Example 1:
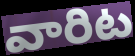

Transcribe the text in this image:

వారిట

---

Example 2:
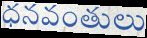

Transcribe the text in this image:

ధనవంతులు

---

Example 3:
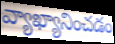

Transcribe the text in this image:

వ్యాఖ్యానించడం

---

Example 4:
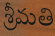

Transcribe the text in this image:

శ్రీమతి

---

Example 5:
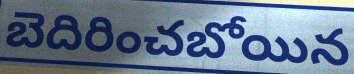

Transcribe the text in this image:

బెదిరించబోయిన